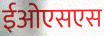
ईओएसएस